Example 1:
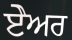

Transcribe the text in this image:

ਏੇਅਰ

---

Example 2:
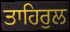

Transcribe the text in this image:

ਤਾਹਿਰੁਲ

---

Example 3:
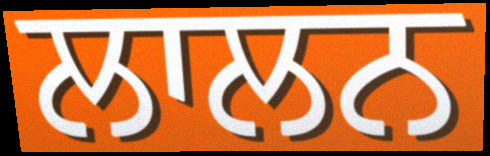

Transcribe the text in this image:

ਲਾਲਨ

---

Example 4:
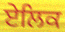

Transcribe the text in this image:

ਏਲਿਕ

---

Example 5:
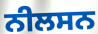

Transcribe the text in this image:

ਨੀਲਸਨ